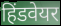
हिंडवेयर